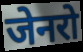
जेनरो